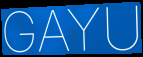
GAYU